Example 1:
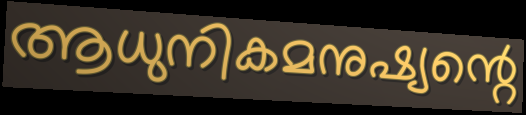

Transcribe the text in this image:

ആധുനികമനുഷ്യന്റെ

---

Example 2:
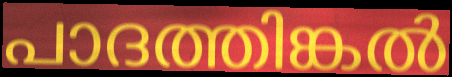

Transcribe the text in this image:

പാദത്തിങ്കൽ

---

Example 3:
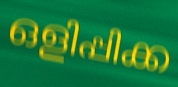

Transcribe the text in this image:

ഒളിപ്പിക്ക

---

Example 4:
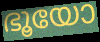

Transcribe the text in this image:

ഭൂയോ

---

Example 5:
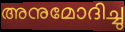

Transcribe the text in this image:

അനുമോദിച്ചു